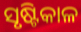
ସୃଷ୍ଟିକାଳ